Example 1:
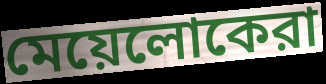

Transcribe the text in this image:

মেয়েলোকেরা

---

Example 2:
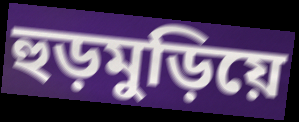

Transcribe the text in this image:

হুড়মুড়িয়ে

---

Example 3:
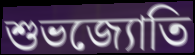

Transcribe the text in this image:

শুভজ্যোতি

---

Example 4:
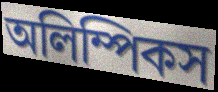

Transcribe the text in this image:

অলিম্পিকস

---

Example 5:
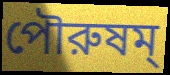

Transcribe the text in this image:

পৌরুষম্